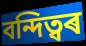
বন্দিত্বৰ